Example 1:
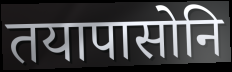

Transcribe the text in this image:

तयापासोनि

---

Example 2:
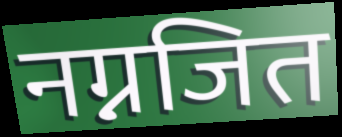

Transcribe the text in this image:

नग्नजित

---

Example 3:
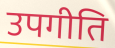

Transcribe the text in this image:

उपगीति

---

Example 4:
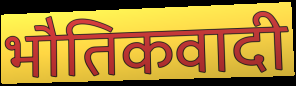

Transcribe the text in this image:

भौतिकवादी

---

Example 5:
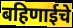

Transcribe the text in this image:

बहिणाईचे